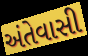
અંતેવાસી